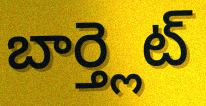
బార్త్లెట్